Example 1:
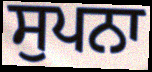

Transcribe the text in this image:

ਸੁਪਨਾ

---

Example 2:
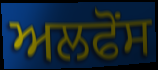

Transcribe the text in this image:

ਅਲਫੋਂਸ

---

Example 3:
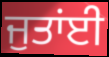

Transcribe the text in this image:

ਜੁਤਾਂਈ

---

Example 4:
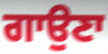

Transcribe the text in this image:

ਗਾਉਣਾ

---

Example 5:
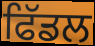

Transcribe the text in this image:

ਫਿੱਡਲ